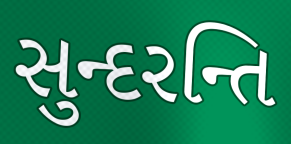
સુન્દરન્તિ